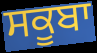
ਸਕੂਬਾ